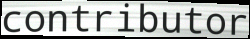
contributor